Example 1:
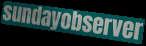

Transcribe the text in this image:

sundayobserver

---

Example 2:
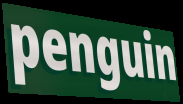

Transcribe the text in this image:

penguin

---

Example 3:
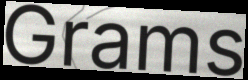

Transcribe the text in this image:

Grams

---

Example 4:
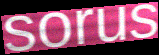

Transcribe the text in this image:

sorus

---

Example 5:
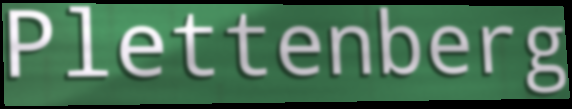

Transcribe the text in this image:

Plettenberg